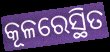
କୂଳରେସ୍ଥିତ